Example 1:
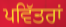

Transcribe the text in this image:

ਪਵਿੱਤਰਾਂ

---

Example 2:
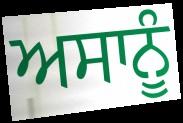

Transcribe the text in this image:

ਅਸਾਨੂੰ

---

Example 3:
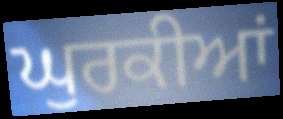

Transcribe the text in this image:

ਘੁਰਕੀਆਂ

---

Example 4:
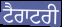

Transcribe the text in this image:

ਟੈਰਾਟਰੀ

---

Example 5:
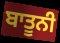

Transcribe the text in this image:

ਬਾਤੂਨੀ